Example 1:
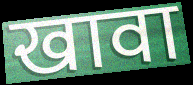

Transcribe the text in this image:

खावा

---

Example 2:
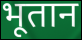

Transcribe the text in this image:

भूतान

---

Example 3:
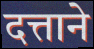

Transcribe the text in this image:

दत्ताने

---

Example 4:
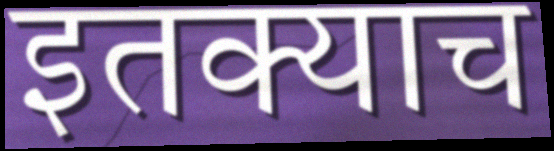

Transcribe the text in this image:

इतक्याच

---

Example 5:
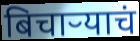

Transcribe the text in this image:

बिचाऱ्याचं